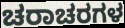
ಚರಾಚರಗಳ